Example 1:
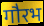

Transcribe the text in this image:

गौरभ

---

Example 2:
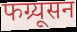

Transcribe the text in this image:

फग्र्यूसन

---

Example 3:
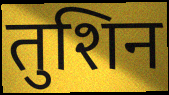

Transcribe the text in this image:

तुशिन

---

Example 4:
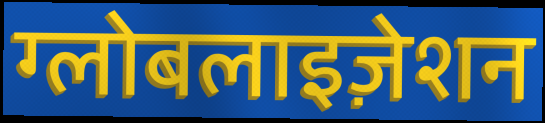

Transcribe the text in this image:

ग्लोबलाइज़ेशन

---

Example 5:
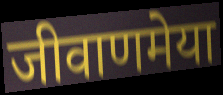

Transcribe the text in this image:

जीवाणमेया